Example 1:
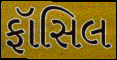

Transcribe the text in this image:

ફૉસિલ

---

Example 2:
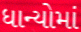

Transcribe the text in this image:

ધાન્યોમાં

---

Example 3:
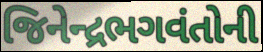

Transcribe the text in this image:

જિનેન્દ્રભગવંતોની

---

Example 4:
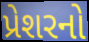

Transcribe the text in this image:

પ્રેશરનો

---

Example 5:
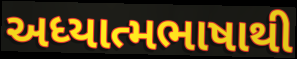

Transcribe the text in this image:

અધ્યાત્મભાષાથી